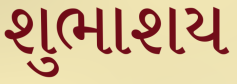
શુભાશય